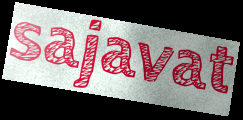
sajavat